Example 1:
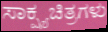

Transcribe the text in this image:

ಸಾಕ್ಷ್ಯಚಿತ್ರಗಳು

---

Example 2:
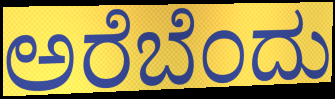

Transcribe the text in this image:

ಅರೆಬೆಂದು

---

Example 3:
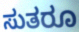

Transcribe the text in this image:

ಸುತರೂ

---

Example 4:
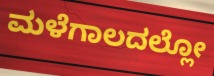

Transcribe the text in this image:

ಮಳೆಗಾಲದಲ್ಲೋ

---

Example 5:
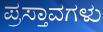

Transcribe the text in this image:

ಪ್ರಸ್ತಾವಗಳು